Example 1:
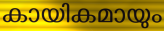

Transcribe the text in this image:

കായികമായും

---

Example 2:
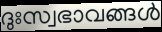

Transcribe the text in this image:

ദുഃസ്വഭാവങ്ങൾ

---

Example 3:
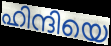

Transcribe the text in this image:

ഹിന്ദിയെ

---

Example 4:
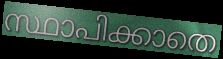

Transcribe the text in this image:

സ്ഥാപിക്കാതെ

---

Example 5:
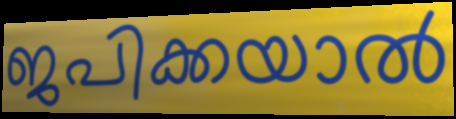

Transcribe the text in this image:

ജപിക്കയാൽ